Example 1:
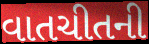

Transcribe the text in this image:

વાતચીતની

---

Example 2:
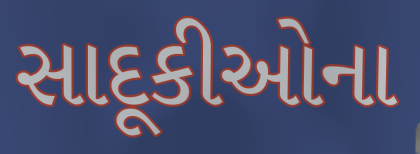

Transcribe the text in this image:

સાદૂકીઓના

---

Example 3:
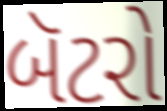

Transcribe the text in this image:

બૅટરો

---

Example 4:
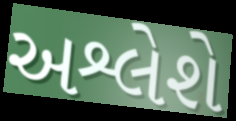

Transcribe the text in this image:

અશ્લેશે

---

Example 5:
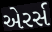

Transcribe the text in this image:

એરર્સ